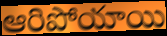
ఆరిపోయాయి